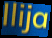
Ilija